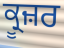
ਕ੍ਰੂਜ਼ਰ